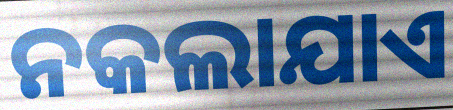
ନକଲାଯାଏ